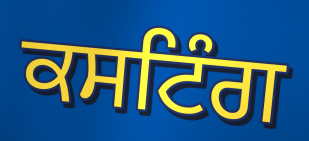
ਕਸਟਿੰਗ